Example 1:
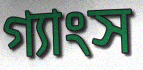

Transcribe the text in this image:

গ্যাংস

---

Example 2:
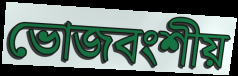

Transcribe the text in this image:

ভোজবংশীয়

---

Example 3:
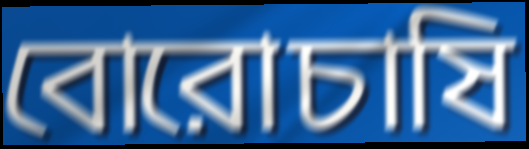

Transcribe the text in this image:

বোরোচাষি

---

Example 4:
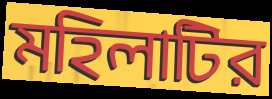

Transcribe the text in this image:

মহিলাটির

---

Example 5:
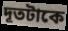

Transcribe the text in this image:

দূতটাকে